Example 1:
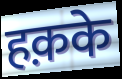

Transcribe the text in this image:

हक़के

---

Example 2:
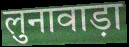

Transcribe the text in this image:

लुनावाड़ा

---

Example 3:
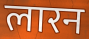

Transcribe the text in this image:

लारन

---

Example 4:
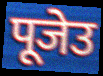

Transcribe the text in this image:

पूजेउ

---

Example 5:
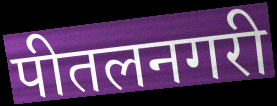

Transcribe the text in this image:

पीतलनगरी